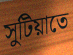
সুটিয়াতে